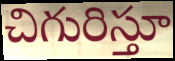
చిగురిస్తూ